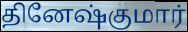
தினேஷ்குமார்